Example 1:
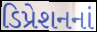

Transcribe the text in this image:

ડિપ્રેશનનાં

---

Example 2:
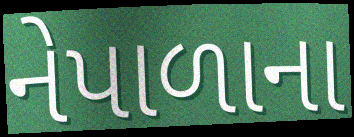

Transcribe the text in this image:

નેપાળાના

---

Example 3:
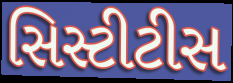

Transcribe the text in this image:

સિસ્ટીટીસ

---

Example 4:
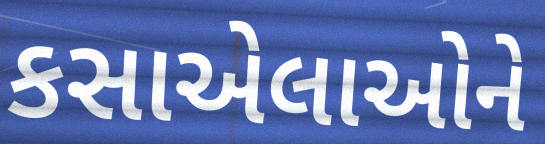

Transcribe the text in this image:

કસાએલાઓને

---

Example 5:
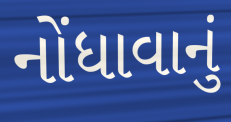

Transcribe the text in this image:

નોંધાવાનું